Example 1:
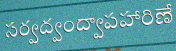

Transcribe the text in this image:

సర్వద్వంద్వాపహారిణే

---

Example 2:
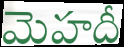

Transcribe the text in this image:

మెహదీ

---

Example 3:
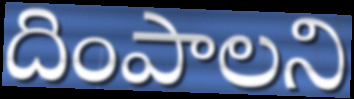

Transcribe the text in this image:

దింపాలని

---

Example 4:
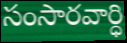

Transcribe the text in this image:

సంసారవార్ధి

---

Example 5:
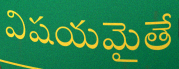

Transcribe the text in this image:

విషయమైతే